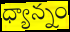
ధ్యాన్నం